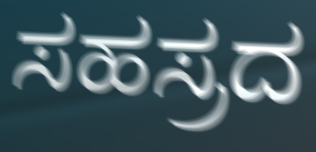
ಸಹಸ್ರದ